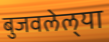
बुजवलेल्या